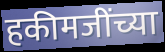
हकीमजींच्या